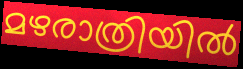
മഴരാത്രിയിൽ